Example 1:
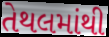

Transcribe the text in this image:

તેથલમાંથી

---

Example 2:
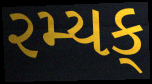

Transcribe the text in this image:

રમ્યક્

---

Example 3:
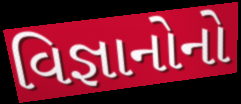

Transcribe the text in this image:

વિજ્ઞાનોનો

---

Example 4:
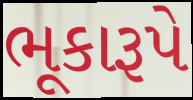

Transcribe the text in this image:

ભૂકારૂપે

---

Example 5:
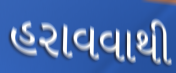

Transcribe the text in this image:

હરાવવાથી